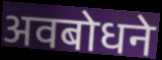
अवबोधने